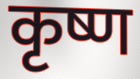
कृष्ण